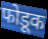
फोडूक